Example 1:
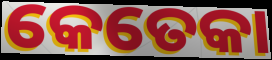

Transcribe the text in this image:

କେତେକା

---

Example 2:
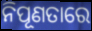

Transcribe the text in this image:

ନିପୂଣତାରେ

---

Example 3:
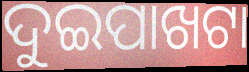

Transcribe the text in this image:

ଦୁଇପାଖଟା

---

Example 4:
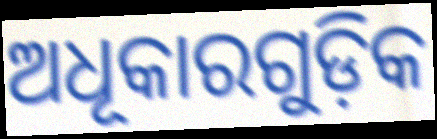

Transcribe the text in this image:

ଅଧୂକାରଗୁଡ଼ିକ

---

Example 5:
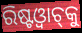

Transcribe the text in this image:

ରିଷ୍ଟଓ୍ୱାଚ୍‍କୁ